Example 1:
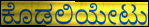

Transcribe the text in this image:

ಕೊಡಲಿಯೇಟು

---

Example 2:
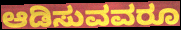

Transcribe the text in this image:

ಆಡಿಸುವವರೂ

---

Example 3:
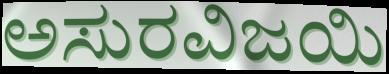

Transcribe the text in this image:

ಅಸುರವಿಜಯಿ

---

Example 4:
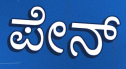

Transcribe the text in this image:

ಪೇನ್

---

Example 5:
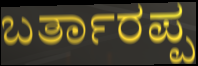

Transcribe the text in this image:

ಬರ್ತಾರಪ್ಪ